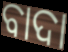
ବାଦା